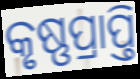
କୃଷ୍ଣପ୍ରାପ୍ତି